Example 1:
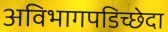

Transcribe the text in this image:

अविभागपडिच्छेदा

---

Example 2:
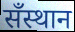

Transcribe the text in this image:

सँस्थान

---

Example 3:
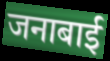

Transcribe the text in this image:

जनाबाई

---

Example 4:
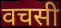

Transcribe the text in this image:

वचसी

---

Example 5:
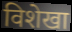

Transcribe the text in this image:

विशेखा